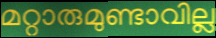
മറ്റാരുമുണ്ടാവില്ല